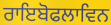
ਰਾਇਬੋਫਲਾਵਿਨ